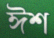
ঈশ